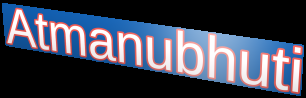
Atmanubhuti